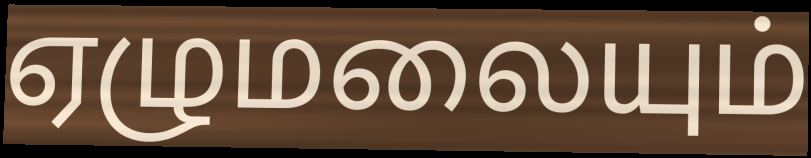
ஏழுமலையும்